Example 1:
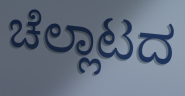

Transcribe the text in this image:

ಚೆಲ್ಲಾಟದ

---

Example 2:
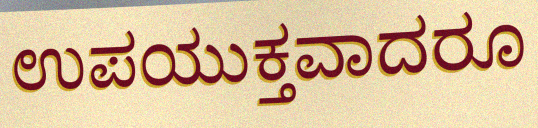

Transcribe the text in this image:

ಉಪಯುಕ್ತವಾದರೂ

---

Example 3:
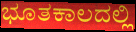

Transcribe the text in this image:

ಭೂತಕಾಲದಲ್ಲಿ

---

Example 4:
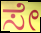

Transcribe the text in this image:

ಸೇ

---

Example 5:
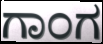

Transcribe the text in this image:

ಗಾಂಗ